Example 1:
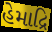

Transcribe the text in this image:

હેમાદ્રિ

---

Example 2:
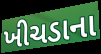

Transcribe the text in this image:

ખીચડાના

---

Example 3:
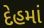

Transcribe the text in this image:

દેહમાં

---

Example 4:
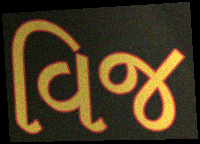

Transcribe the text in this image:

વિજ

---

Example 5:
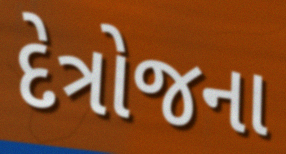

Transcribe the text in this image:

દેત્રોજના